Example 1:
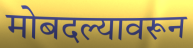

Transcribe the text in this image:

मोबदल्यावरून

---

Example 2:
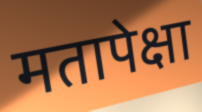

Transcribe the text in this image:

मतापेक्षा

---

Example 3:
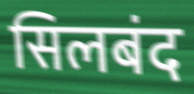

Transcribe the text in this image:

सिलबंद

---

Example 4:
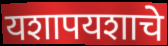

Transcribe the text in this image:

यशापयशाचे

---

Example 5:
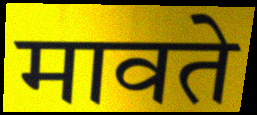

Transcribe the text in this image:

मावते